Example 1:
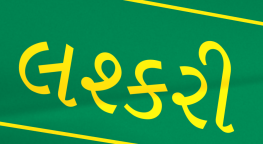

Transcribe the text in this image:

લશ્કરી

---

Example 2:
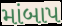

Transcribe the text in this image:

માંબાપ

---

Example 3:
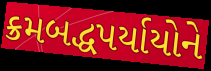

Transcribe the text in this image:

ક્રમબદ્ધપર્યાયોને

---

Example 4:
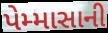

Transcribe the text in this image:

પેમ્માસાની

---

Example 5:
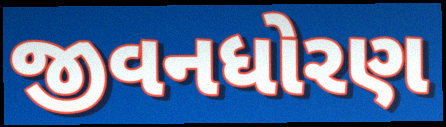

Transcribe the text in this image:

જીવનધોરણ